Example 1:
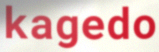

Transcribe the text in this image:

kagedo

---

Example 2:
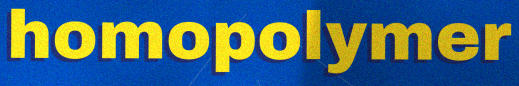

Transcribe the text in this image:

homopolymer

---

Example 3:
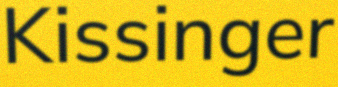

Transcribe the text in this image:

Kissinger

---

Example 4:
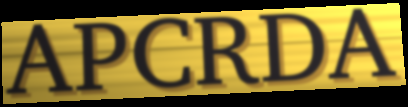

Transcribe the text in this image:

APCRDA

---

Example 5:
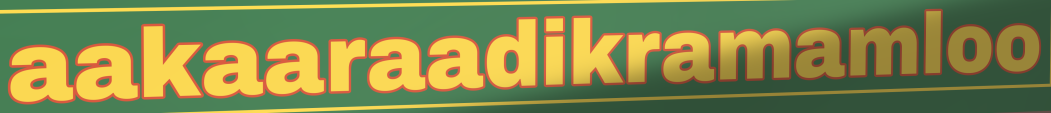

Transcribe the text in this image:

aakaaraadikramamloo